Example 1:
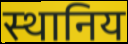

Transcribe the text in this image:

स्थानिय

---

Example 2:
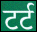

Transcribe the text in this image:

टर्ट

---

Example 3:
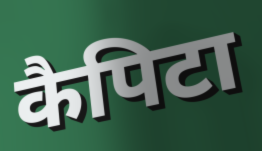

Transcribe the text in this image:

कैपिटा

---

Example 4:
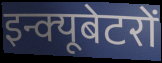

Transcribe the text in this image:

इन्क्यूबेटरों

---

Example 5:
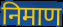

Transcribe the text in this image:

निमाण